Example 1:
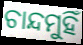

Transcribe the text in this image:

ଚାନ୍ଦମୁହିଁ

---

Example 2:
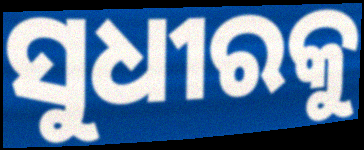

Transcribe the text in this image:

ସୁଧୀରକୁ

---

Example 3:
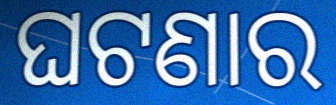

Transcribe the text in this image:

ଘଟଣାର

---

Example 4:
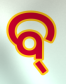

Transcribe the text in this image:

ବ୍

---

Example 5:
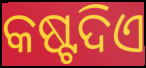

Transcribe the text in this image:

କଷ୍ଟଦିଏ